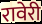
रावेरी